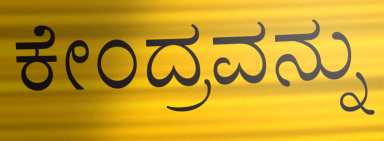
ಕೇಂದ್ರವನ್ನು